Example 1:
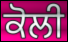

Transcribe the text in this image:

ਕੋਲੀ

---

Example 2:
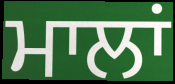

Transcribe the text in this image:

ਮਾਲਾਂ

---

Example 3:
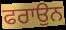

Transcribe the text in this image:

ਫਰਾਉਨ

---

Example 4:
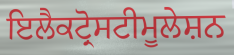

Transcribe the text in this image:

ਇਲੈਕਟ੍ਰੋਸਟੀਮੂਲੇਸ਼ਨ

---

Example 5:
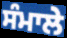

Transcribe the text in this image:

ਸੰਮਾਲੇ